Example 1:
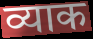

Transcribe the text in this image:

व्याक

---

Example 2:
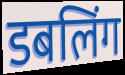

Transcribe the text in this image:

डबलिंग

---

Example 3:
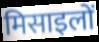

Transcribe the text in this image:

मिसाइलों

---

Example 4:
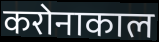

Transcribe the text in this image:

करोनाकाल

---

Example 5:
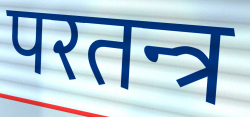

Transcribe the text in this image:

परतन्त्र